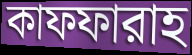
কাফফারাহ